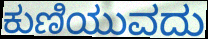
ಕುಣಿಯುವದು